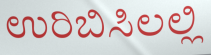
ಉರಿಬಿಸಿಲಲ್ಲಿ